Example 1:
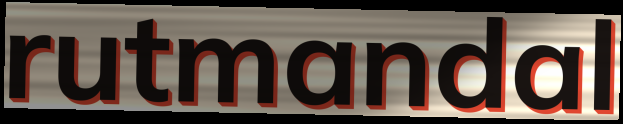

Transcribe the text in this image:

rutmandal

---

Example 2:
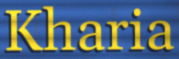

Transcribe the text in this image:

Kharia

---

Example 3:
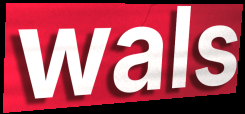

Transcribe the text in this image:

wals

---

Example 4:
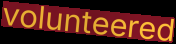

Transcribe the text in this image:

volunteered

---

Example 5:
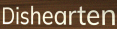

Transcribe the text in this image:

Dishearten